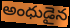
అంధుడైన